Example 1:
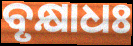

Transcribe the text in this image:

ବୃକ୍ଷାଧଃ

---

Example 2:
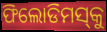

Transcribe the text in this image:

ଫିଲୋଡିମସ୍‌କୁ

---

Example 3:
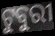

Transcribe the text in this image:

ଟୁବୁରୀ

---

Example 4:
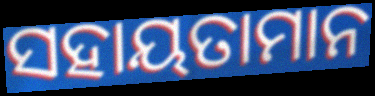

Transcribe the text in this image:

ସହାୟତାମାନ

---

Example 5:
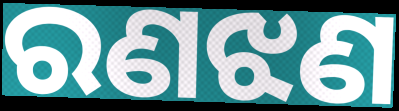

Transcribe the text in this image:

ରଣଝଣ